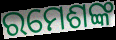
ରମେଶଙ୍କ